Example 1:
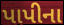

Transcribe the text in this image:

પાપીના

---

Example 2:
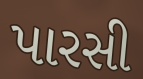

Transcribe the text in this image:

પારસી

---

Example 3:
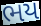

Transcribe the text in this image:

ભય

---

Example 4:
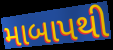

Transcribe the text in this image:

માબાપથી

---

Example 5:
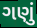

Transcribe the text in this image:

ગણું